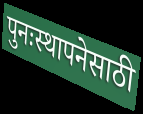
पुनःस्थापनेसाठी